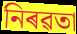
নিৰৱতা